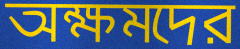
অক্ষমদের